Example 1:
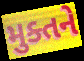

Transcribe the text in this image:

મુક્તને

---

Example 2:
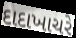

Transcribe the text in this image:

દાદાખાચરે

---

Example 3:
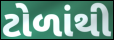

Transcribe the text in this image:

ટોળાંથી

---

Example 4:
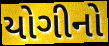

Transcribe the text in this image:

યોગીનો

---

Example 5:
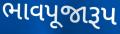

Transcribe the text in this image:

ભાવપૂજારૂપ